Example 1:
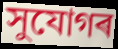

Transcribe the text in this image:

সুযোগৰ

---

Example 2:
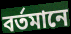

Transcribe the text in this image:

বৰ্তমানে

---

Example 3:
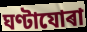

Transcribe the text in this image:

ঘণ্টাযোৰা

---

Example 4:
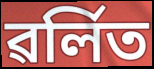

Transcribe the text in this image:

ৱৰ্লিত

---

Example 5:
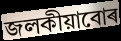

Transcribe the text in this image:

জলকীয়াবোৰ